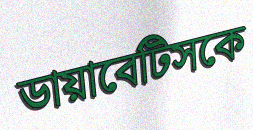
ডায়াবেটিসকে